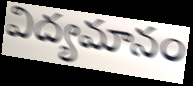
విద్యమానం